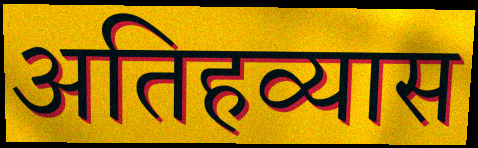
अतिहव्यास